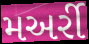
મઅર્રી